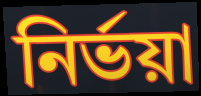
নির্ভয়া